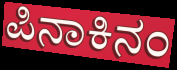
ಪಿನಾಕಿನಂ